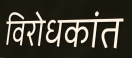
विरोधकांत